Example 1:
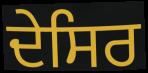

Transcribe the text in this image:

ਦੇਸਿਰ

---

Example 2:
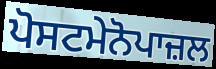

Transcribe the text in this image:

ਪੋਸਟਮੇਨੋਪਾਜ਼ਲ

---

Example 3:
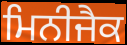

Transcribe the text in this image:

ਮਿਨੀਜੈਕ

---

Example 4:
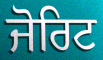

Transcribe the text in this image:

ਜੋਰਿਟ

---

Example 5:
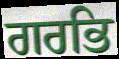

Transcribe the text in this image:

ਗਰਭਿ